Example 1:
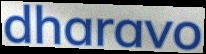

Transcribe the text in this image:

dharavo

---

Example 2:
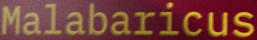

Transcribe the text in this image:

Malabaricus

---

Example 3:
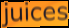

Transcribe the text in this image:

juices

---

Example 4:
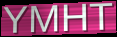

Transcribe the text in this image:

YMHT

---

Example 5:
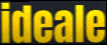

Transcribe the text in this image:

ideale